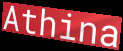
Athina